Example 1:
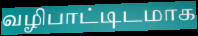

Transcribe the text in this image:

வழிபாட்டிடமாக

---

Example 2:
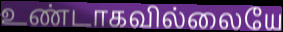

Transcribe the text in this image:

உண்டாகவில்லையே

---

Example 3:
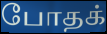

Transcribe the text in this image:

போதக்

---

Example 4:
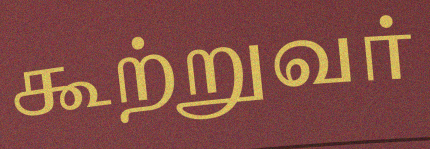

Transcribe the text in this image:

கூற்றுவர்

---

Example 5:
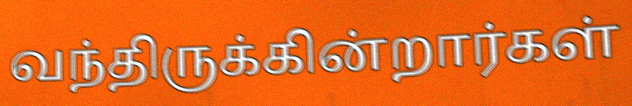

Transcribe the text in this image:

வந்திருக்கின்றார்கள்